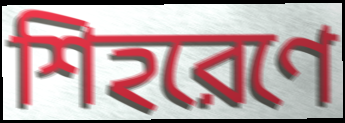
শিহরেণে